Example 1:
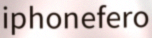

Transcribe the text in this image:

iphonefero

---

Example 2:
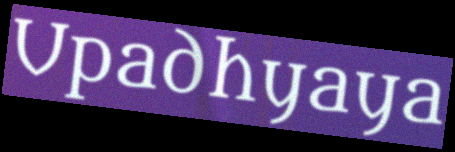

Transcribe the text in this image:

Upadhyaya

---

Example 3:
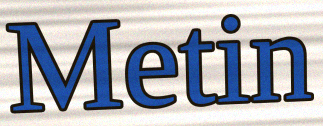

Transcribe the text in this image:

Metin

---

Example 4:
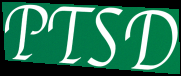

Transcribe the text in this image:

PTSD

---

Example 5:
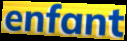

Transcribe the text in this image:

enfant